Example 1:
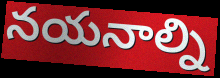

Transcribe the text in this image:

నయనాల్ని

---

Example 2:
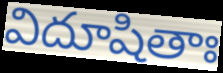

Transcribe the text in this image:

విదూషితాః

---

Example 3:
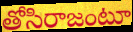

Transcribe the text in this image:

తోసిరాజంటూ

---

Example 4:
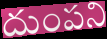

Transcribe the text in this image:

దుంపని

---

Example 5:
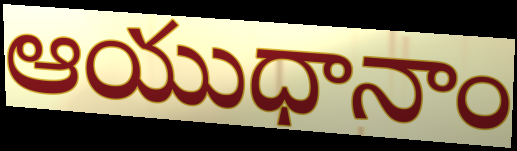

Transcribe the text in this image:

ఆయుధానాం